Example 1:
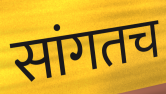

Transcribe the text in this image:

सांगतच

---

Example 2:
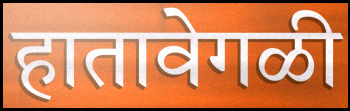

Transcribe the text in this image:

हातावेगळी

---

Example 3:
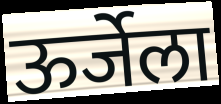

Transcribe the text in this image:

ऊर्जेला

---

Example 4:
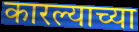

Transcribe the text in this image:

कारल्याच्या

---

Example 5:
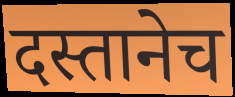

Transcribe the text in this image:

दस्तानेच